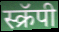
स्क्रॅपी